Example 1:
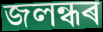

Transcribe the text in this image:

জলন্ধৰ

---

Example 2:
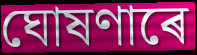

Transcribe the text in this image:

ঘোষণাৰে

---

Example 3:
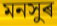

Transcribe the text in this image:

মনসুৰ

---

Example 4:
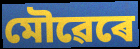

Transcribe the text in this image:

মৌৱেৰে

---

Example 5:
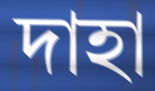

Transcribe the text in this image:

দাহা